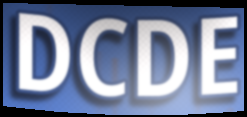
DCDE